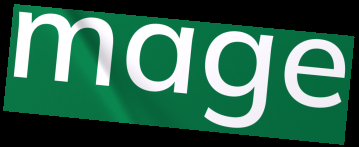
mage